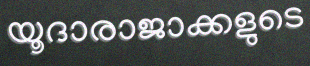
യൂദാരാജാക്കളുടെ